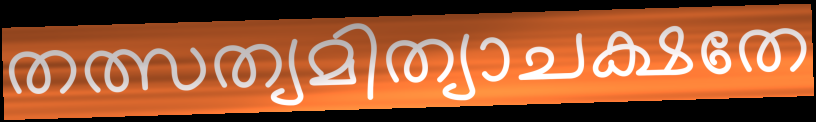
തത്സത്യമിത്യാചക്ഷതേ